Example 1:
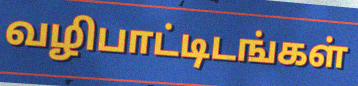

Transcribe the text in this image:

வழிபாட்டிடங்கள்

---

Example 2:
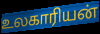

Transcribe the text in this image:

உலகாரியன்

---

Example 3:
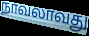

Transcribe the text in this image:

நாவலாவது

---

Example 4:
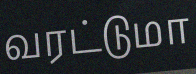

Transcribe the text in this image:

வரட்டுமா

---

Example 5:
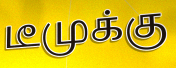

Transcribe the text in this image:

டீமுக்கு